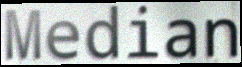
Median